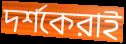
দর্শকেরাই